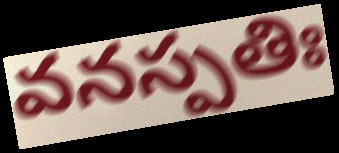
వనస్పతిః